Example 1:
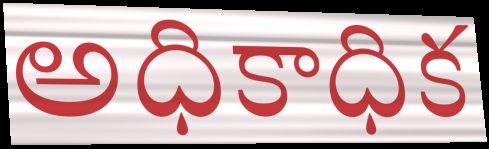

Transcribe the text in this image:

అధికాధిక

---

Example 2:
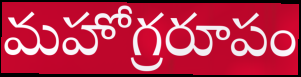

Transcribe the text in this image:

మహోగ్రరూపం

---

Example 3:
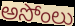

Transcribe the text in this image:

అసోంలు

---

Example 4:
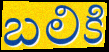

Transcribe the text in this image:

బలికి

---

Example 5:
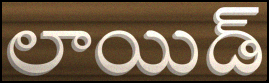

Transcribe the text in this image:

లాయిడ్